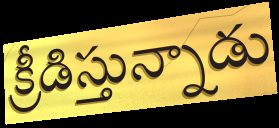
క్రీడిస్తున్నాడు